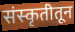
संस्कृतीतून